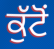
ਕੁੱਟੋਂ